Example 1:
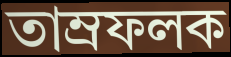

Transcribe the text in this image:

তাম্রফলক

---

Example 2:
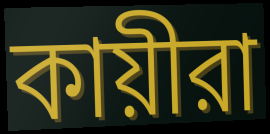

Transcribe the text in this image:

কায়ীরা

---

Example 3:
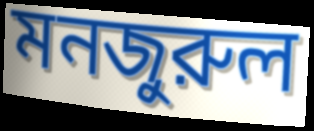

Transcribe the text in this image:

মনজুরুল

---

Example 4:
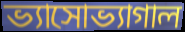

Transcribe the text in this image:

ভ্যাসোভ্যাগাল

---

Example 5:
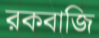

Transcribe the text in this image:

রকবাজি